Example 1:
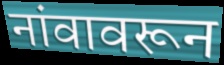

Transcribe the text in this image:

नांवावरून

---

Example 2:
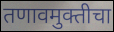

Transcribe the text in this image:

तणावमुक्तीचा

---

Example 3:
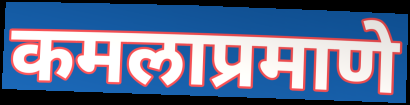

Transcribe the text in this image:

कमलाप्रमाणे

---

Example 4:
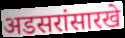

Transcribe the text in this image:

अडसरांसारखे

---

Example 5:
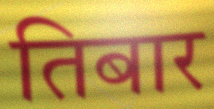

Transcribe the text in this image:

तिबार